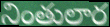
నింతులార